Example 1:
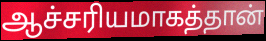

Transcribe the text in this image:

ஆச்சரியமாகத்தான்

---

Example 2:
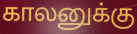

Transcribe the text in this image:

காலனுக்கு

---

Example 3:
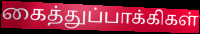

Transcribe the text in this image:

கைத்துப்பாக்கிகள்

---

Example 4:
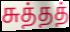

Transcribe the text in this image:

சுத்தத்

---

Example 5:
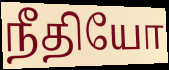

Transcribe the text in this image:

நீதியோ